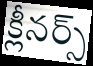
క్లీనర్స్